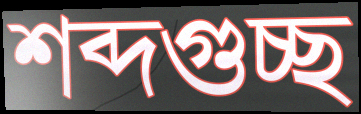
শব্দগুচ্ছ